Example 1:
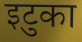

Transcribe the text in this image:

इटुका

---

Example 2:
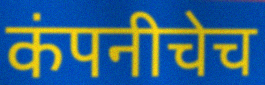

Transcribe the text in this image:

कंपनीचेच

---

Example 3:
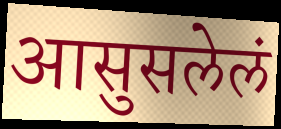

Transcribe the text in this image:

आसुसलेलं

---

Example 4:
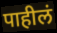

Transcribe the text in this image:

पाहीलं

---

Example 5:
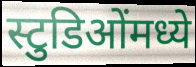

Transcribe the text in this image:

स्टुडिओंमध्ये